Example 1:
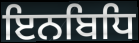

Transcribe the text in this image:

ਇਨਬਿਧਿ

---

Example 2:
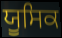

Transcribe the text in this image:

ਯੂਸਿਕ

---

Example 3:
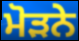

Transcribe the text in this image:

ਮੋੜਨੇ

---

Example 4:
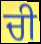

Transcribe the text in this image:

ਚੀ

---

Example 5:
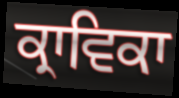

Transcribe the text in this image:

ਕ੍ਰਾਵਿਕਾ